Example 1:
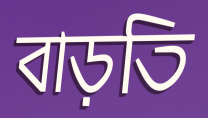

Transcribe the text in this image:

বাড়তি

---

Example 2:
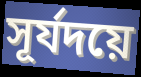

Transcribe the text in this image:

সূর্যদয়ে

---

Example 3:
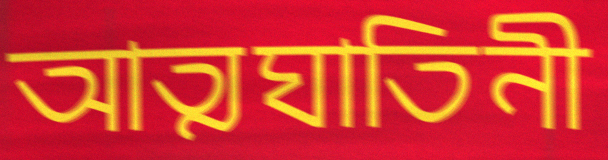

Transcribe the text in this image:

আত্মঘাতিনী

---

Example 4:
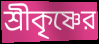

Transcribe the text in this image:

শ্রীকৃষ্ণের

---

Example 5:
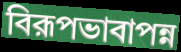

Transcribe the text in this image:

বিরূপভাবাপন্ন